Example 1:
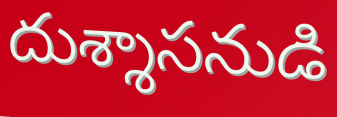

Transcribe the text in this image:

దుశ్శాసనుడి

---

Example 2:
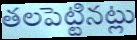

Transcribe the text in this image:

తలపెట్టినట్లు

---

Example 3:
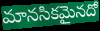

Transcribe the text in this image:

మానసికమైనదో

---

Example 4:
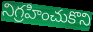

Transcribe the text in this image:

నిగ్రహించుకొని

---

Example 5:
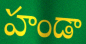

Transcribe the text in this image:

హండా